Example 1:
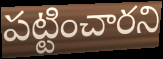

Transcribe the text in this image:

పట్టించారని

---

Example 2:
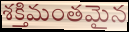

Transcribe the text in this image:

శక్తిమంతమైన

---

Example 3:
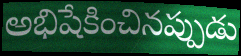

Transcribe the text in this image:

అభిషేకించినప్పుడు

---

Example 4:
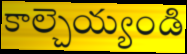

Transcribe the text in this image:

కాల్చెయ్యండి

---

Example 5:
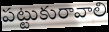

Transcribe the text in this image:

పట్టుకురావాలి